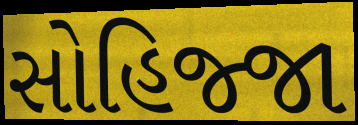
સોહિજ્જા